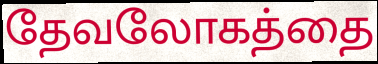
தேவலோகத்தை